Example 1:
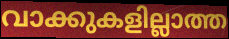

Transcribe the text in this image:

വാക്കുകളില്ലാത്ത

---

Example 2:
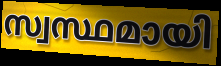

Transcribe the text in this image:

സ്വസ്ഥമായി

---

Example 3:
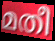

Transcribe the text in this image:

മതീ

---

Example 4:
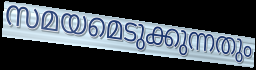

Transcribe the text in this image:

സമയമെടുക്കുന്നതും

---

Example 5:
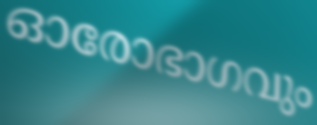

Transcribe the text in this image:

ഓരോഭാഗവും